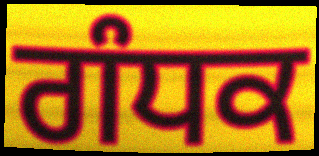
ਗੰਧਕ